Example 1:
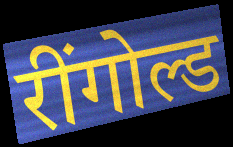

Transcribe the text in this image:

रींगोल्ड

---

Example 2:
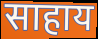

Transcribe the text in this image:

साहाय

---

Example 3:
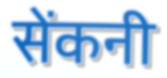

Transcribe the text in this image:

सेंकनी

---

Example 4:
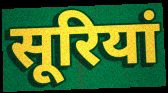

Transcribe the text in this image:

सूरियां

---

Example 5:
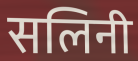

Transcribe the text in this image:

सलिनी